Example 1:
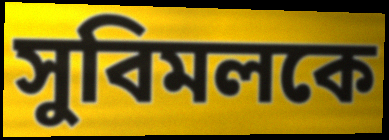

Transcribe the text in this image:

সুবিমলকে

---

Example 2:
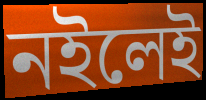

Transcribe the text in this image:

নইলেই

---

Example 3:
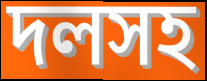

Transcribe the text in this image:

দলসহ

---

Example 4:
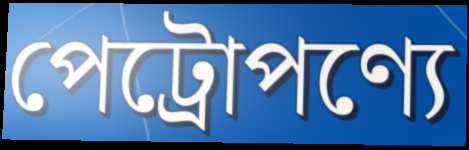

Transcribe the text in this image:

পেট্রোপণ্যে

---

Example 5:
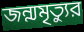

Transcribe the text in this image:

জন্মমৃত্যুর